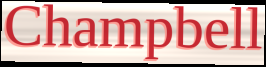
Champbell